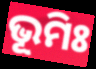
ଭୂମିଃ